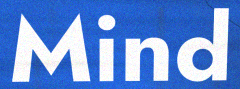
Mind